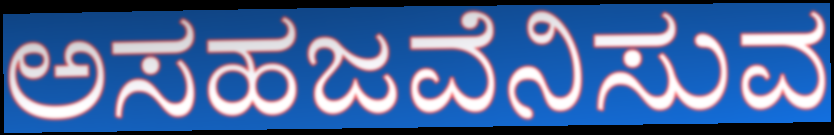
ಅಸಹಜವೆನಿಸುವ